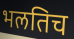
भलतिच